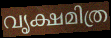
വൃക്ഷമിത്ര